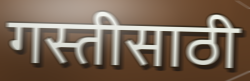
गस्तीसाठी